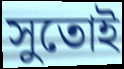
সুতোই